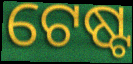
ଟେଷ୍ଟ